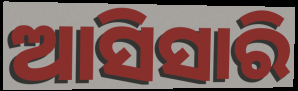
ଆସିସାରି